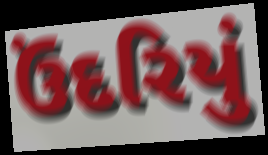
ઉંદરિયું